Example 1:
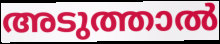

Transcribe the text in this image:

അടുത്താൽ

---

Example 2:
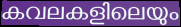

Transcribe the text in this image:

കവലകളിലെയും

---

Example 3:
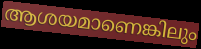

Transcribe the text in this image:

ആശയമാണെങ്കിലും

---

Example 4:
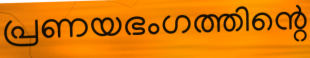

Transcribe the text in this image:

പ്രണയഭംഗത്തിന്റെ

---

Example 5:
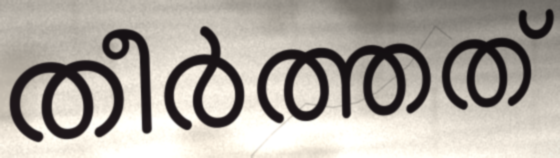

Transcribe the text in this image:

തീർത്തത്